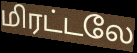
மிரட்டலே